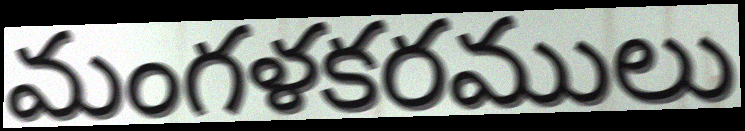
మంగళకరములు